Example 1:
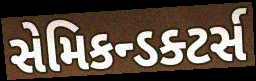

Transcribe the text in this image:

સેમિકન્ડક્ટર્સ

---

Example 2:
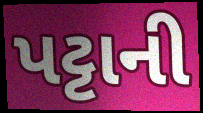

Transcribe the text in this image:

પટ્ટાની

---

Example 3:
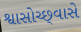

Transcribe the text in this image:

શ્વાસોચ્છ્‍વાસે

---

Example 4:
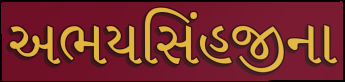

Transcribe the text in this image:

અભયસિંહજીના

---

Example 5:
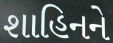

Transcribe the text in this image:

શાહિનને